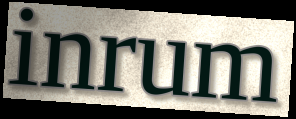
inrum